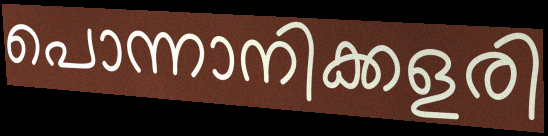
പൊന്നാനിക്കളരി